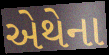
એથેના